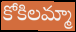
కోకిలమ్మా